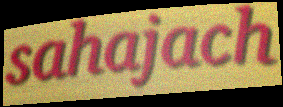
sahajach